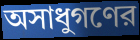
অসাধুগণের